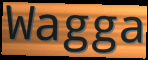
Wagga